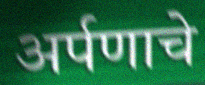
अर्पणाचे